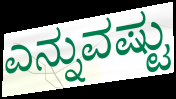
ಎನ್ನುವಷ್ಟು